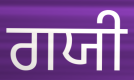
ਗਯੀ